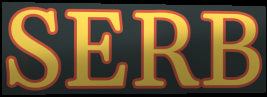
SERB